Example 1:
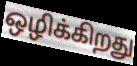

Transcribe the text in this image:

ஒழிக்கிறது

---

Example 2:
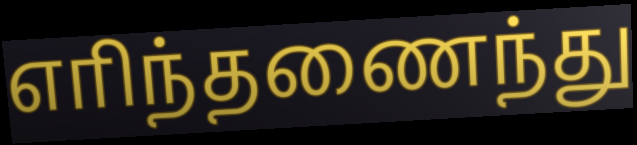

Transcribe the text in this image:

எரிந்தணைந்து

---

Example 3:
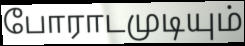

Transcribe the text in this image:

போராடமுடியும்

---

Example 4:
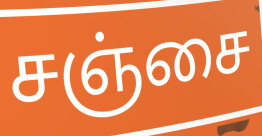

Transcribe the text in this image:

சஞ்சை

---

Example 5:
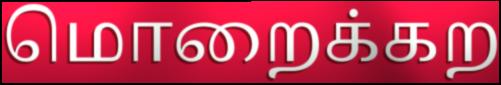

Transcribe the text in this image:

மொறைக்கற